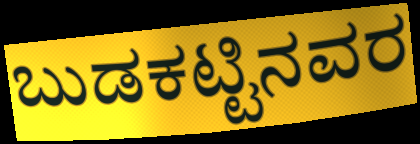
ಬುಡಕಟ್ಟಿನವರ